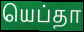
யெப்தா